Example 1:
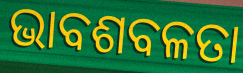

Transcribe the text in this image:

ଭାବଶବଳତା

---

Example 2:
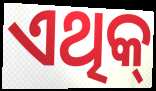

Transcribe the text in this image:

ଏଥିକ୍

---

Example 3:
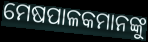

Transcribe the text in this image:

ମେଷପାଳକମାନଙ୍କୁ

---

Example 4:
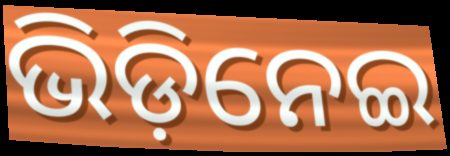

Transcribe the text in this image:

ଭିଡ଼ିନେଇ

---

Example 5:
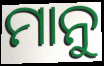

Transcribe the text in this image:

ମାନୁ